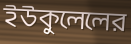
ইউকুলেলের